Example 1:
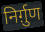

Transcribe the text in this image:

निर्ग़ुण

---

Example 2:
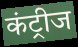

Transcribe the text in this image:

कंट्रीज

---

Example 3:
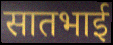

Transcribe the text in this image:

सातभाई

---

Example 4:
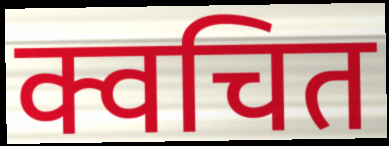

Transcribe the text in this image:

क्वचित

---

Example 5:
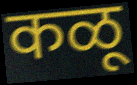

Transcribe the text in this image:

कळू